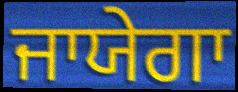
ਜਾਯੇਗਾ